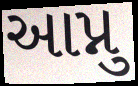
આપ્નુ